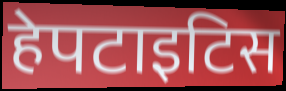
हेपटाइटिस